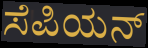
ಸೆಪಿಯನ್